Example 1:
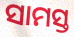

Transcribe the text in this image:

ସାମସ୍ତ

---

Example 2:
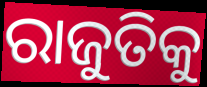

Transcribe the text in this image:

ରାଜୁତିକୁ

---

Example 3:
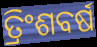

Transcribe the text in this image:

ତ୍ରିଂଶବର୍ଷ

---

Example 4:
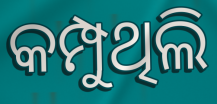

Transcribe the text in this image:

କମ୍ପୁଥିଲି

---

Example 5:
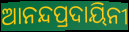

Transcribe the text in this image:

ଆନନ୍ଦପ୍ରଦାୟିନୀ